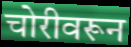
चोरीवरून